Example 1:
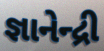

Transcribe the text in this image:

જ્ઞાનેન્દ્રી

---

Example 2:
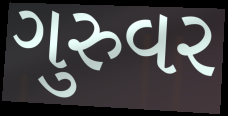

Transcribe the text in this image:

ગુરુવર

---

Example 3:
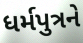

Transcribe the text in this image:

ધર્મપુત્રને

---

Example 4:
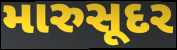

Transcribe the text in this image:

મારુસૂદર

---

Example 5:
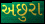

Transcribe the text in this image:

અછુરા